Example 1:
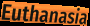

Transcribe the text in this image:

Euthanasia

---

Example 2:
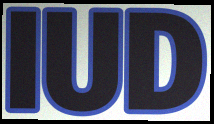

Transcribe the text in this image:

IUD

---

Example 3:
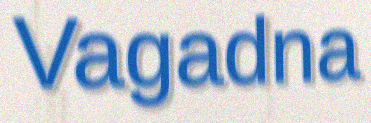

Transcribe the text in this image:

Vagadna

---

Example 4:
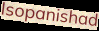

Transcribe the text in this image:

Isopanishad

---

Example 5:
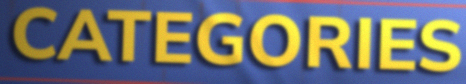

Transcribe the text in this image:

CATEGORIES